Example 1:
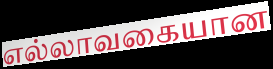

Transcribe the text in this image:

எல்லாவகையான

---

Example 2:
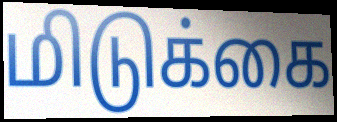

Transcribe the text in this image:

மிடுக்கை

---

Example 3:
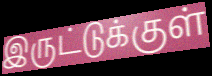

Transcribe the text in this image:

இருட்டுக்குள்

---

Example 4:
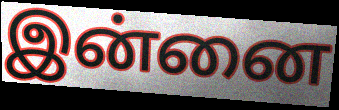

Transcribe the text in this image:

இன்னை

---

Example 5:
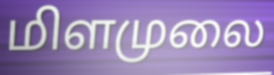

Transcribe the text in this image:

மிளமுலை